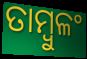
ତାମ୍ବୁଳଂ